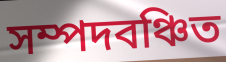
সম্পদবঞ্চিত